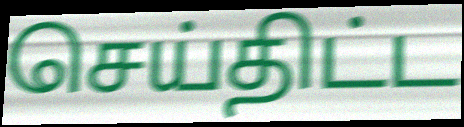
செய்திட்ட